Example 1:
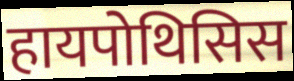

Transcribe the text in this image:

हायपोथिसिस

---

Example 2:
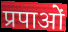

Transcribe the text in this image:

प्रपाओं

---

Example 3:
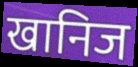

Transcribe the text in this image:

खानिज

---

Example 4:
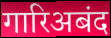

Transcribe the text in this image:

गारिअबंद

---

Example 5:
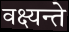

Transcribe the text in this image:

वक्ष्यन्ते